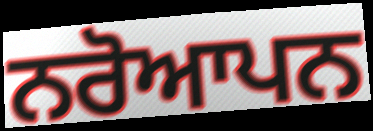
ਨਰੋਆਪਨ